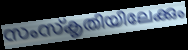
സംസ്കൃതിയിലേക്കും